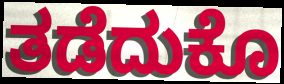
ತಡೆದುಕೊ